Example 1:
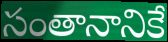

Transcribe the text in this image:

సంతానానికే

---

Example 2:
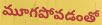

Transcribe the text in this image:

మూగపోవడంతో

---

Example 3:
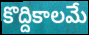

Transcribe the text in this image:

కొద్దికాలమే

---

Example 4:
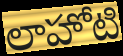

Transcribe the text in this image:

లాహోటి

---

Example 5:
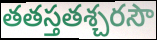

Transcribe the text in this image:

తతస్తతశ్చరసౌ